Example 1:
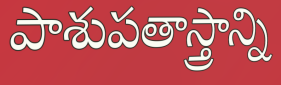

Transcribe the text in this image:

పాశుపతాస్త్రాన్ని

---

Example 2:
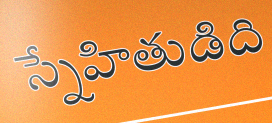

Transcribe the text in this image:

స్నేహితుడిది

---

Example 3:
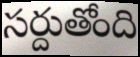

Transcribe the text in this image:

సర్దుతోంది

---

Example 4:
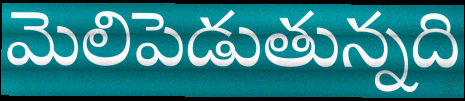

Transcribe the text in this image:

మెలిపెడుతున్నది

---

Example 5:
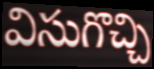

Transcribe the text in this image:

విసుగొచ్చి